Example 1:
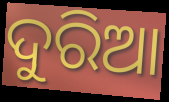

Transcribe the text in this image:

ଦୁରିଆ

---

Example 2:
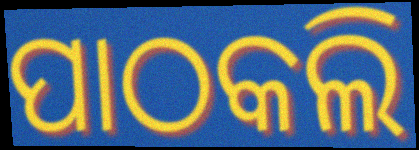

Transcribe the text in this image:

ପାଠକଲି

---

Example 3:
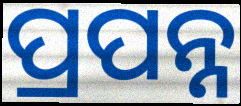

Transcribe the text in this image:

ପ୍ରପନ୍ନ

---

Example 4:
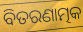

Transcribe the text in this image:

ବିତରଣାତ୍ମକ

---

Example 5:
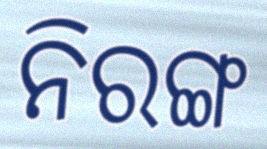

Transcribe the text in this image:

ନିରଙ୍ଗ